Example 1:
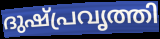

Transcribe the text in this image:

ദുഷ്പ്രവൃത്തി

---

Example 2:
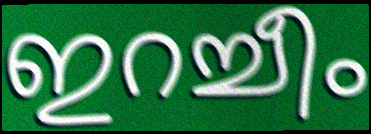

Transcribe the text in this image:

ഇറച്ചീം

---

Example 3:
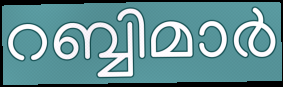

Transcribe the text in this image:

റബ്ബിമാർ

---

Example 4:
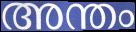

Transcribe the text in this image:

അന്തം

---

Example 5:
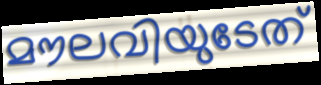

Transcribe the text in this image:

മൗലവിയുടേത്